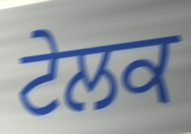
ਟੇਲਕ